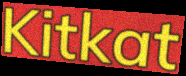
Kitkat